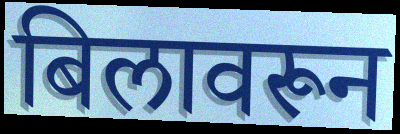
बिलावरून